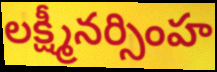
లక్ష్మీనర్సింహ